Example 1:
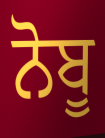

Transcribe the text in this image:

ਨੋਬੂ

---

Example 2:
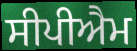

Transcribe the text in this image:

ਸੀਪੀਐਮ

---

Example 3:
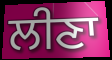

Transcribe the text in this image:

ਲੀਣਾ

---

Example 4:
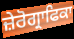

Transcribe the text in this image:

ਜ਼ੇਰੋਗ੍ਰਾਫਿਕਾ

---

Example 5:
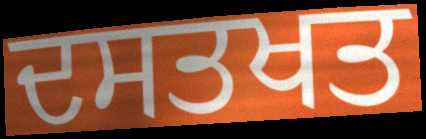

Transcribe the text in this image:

ਦਸਤਖਤ